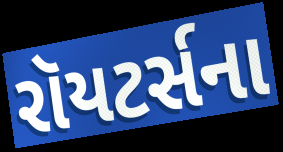
રૉયટર્સના